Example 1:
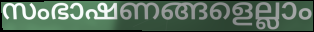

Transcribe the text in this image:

സംഭാഷണങ്ങളെല്ലാം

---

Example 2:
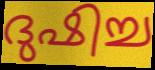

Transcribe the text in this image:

ദുഷിച്ച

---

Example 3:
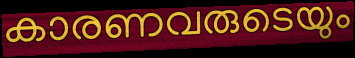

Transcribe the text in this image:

കാരണവരുടെയും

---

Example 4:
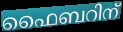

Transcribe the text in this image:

ഫൈബറിന്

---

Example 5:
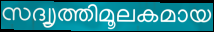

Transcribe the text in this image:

സദ്വൃത്തിമൂലകമായ